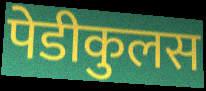
पेडीकुलस